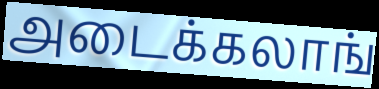
அடைக்கலாங்